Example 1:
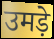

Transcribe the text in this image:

उमड़े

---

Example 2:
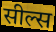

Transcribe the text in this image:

सील्स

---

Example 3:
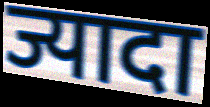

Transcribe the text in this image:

ज्यादा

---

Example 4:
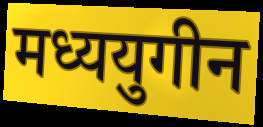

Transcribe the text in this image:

मध्ययुगीन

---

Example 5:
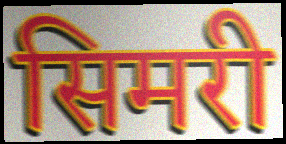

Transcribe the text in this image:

सिमरी